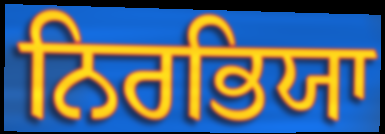
ਨਿਰਭਿਯਾ